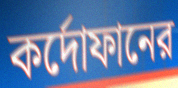
কর্দোফানের